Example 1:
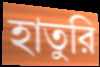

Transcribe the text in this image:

হাতুরি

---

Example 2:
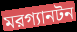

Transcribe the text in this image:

মরগ্যানটন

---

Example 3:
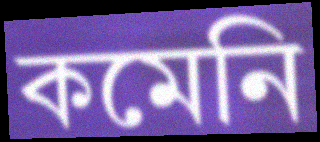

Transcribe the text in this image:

কমেনি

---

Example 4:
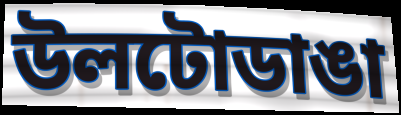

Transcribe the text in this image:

উলটোডাঙা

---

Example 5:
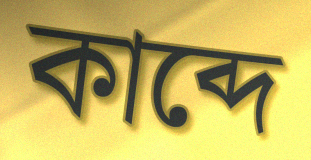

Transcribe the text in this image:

কাব্দে